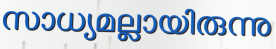
സാധ്യമല്ലായിരുന്നു